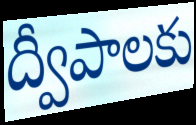
ద్వీపాలకు